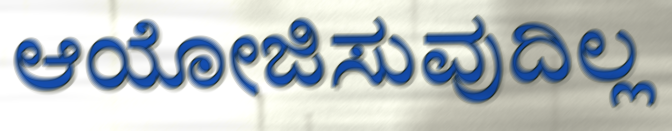
ಆಯೋಜಿಸುವುದಿಲ್ಲ